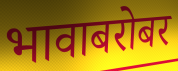
भावाबरोबर